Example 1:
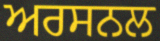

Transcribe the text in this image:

ਅਰਸਨਲ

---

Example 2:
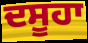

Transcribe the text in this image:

ਦਸੂਹਾ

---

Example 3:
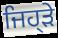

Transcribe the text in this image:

ਜਿਹ੍ੜੇ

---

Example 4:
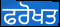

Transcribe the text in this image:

ਫਰੋਖਤ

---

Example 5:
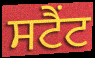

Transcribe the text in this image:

ਸਟੈਂਟ